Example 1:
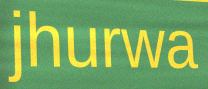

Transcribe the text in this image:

jhurwa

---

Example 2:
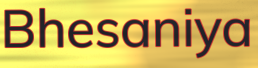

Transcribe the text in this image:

Bhesaniya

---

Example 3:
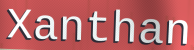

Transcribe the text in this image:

Xanthan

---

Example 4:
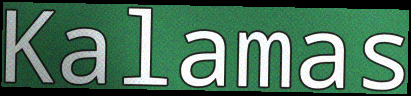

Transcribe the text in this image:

Kalamas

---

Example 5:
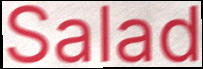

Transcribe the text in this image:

Salad